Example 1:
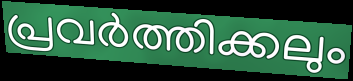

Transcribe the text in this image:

പ്രവർത്തിക്കലും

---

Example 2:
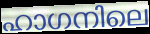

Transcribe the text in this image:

ഹാഗനിലെ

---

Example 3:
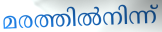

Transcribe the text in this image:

മരത്തിൽനിന്ന്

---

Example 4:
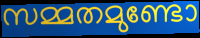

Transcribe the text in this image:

സമ്മതമുണ്ടോ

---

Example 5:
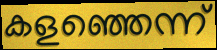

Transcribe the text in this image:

കളഞ്ഞെന്ന്